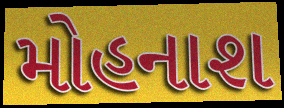
મોહનાશ